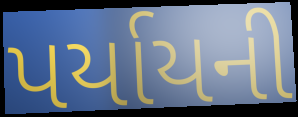
પર્યાયની